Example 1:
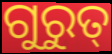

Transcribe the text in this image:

ଗୁରୁତ୍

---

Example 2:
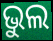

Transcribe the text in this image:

ଭୁଲ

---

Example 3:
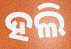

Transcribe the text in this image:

ହଲି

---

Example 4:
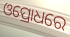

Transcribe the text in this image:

ଓପ୍ରୋଧରେ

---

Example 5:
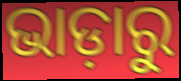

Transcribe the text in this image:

ଭାଡ଼ାରୁ